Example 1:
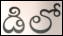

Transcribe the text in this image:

డిలో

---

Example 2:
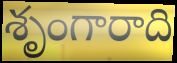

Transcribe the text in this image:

శృంగారాది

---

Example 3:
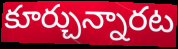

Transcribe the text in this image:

కూర్చున్నారట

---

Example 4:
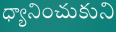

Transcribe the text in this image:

ధ్యానించుకుని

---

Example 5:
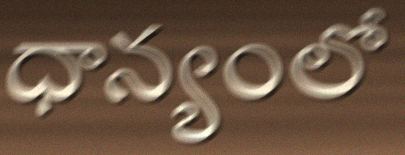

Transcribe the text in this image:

ధాన్యంలో